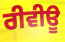
ਰੀਵੀਊ